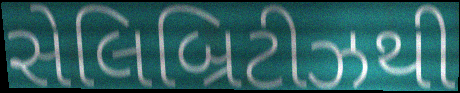
સેલિબ્રિટીઝથી